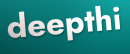
deepthi